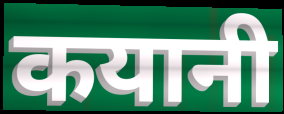
कयानी